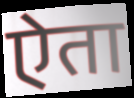
ऐता